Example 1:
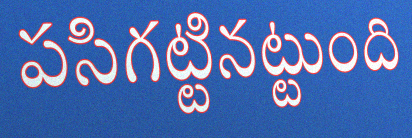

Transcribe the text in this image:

పసిగట్టినట్టుంది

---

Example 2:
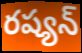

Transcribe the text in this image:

రష్యన్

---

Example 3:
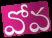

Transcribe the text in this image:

వోవ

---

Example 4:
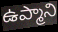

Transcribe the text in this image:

ఉప్మాని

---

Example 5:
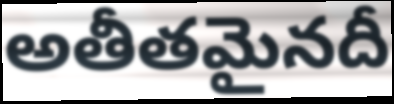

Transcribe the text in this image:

అతీతమైనదీ